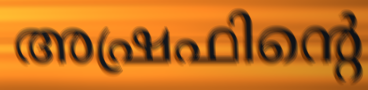
അഷ്രഫിന്റെ